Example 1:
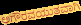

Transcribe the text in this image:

ಅಗೌರವಯುತವಾಗಿ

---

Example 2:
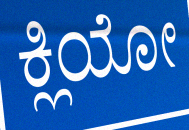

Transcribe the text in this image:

ಕ್ಲಿಯೋ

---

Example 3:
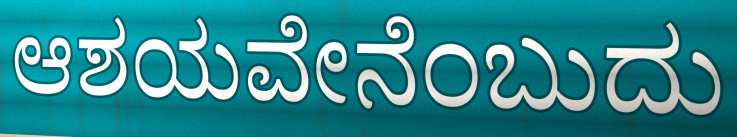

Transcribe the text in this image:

ಆಶಯವೇನೆಂಬುದು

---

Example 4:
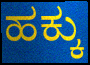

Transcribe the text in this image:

ಹಕ್ಕು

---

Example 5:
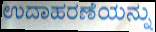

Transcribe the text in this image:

ಉದಾಹರಣೆಯನ್ನು